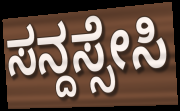
ಸನ್ದಸ್ಸೇಸಿ